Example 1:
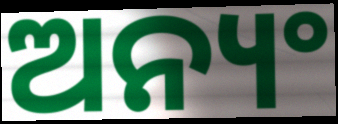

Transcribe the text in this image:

ଅନ୍ୟଂ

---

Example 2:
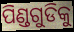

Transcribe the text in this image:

ପିଣ୍ଡଗୁଡିକୁ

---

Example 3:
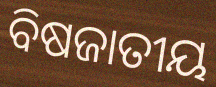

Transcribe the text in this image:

ବିଷଜାତୀୟ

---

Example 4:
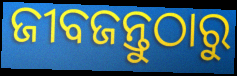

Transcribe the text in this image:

ଜୀବଜନ୍ତୁଠାରୁ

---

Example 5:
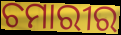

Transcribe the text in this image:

ଚମାରୀର